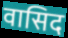
वासिद